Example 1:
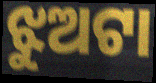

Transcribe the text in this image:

ଝୁଅଟା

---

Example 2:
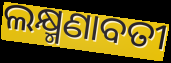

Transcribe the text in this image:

ଲକ୍ଷ୍ମଣାବତୀ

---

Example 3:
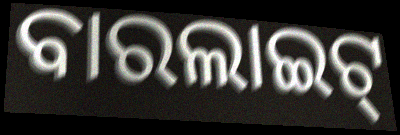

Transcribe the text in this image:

ବାରଲାଇଟ୍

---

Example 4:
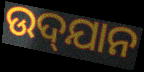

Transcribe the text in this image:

ଉଦ୍‌ଯାନ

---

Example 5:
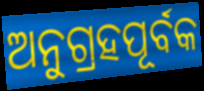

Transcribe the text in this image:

ଅନୁଗ୍ରହପୂର୍ବକ